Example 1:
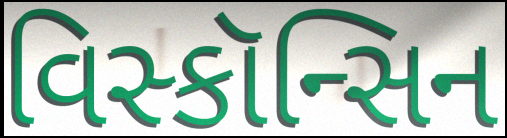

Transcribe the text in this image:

વિસ્કૉન્સિન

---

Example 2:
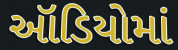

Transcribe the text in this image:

ઑડિયોમાં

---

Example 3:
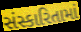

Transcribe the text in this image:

સંસ્કારિતામાં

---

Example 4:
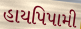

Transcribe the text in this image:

હાયપિપામી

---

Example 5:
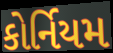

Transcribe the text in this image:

કોર્નિયમ